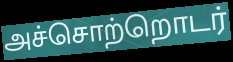
அச்சொற்றொடர்